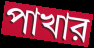
পাখার